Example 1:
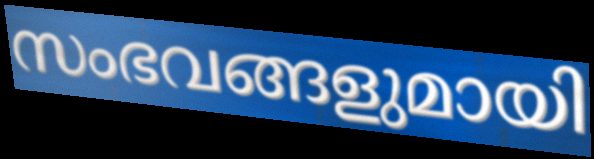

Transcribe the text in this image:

സംഭവങ്ങളുമായി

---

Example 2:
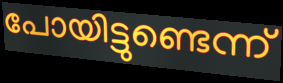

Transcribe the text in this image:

പോയിട്ടുണ്ടെന്ന്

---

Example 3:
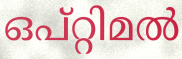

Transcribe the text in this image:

ഒപ്റ്റിമൽ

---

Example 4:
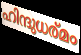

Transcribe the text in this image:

ഹിന്ദുധര്മം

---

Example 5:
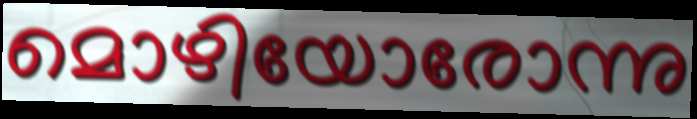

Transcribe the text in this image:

മൊഴിയോരോന്നു